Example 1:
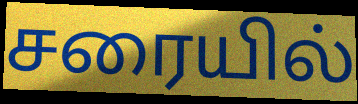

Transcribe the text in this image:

சரையில்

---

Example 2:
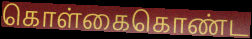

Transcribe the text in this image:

கொள்கைகொண்ட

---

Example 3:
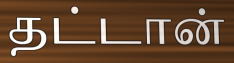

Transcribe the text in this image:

தட்டான்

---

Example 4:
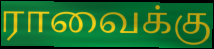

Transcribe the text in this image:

ராவைக்கு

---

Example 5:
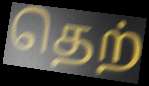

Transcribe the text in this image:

தெற்